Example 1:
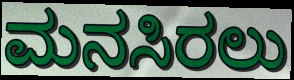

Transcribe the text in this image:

ಮನಸಿರಲು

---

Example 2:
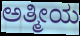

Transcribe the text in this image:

ಅತ್ಮೀಯ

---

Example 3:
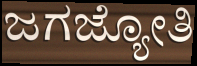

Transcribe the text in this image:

ಜಗಜ್ಯೋತಿ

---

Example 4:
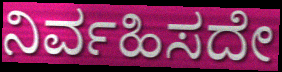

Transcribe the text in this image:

ನಿರ್ವಹಿಸದೇ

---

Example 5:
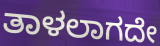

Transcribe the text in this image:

ತಾಳಲಾಗದೇ